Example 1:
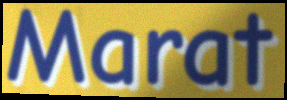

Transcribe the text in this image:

Marat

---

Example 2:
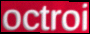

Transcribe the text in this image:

octroi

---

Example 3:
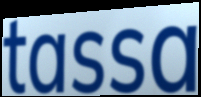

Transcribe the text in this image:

tassa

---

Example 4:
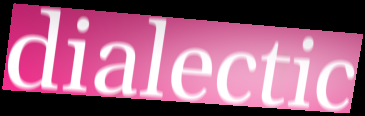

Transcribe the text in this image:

dialectic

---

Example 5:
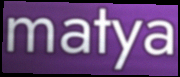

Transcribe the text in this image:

matya